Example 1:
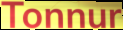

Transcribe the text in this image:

Tonnur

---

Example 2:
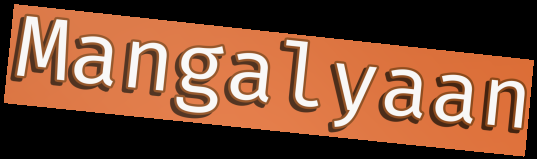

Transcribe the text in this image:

Mangalyaan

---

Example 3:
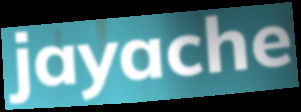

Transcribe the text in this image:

jayache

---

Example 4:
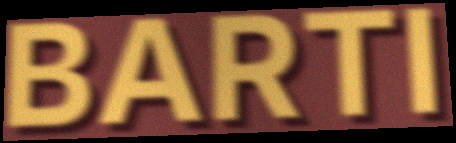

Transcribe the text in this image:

BARTI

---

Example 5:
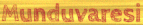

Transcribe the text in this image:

Munduvaresi